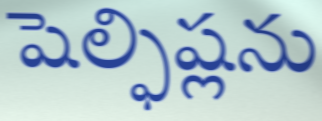
షెల్ఫిష్లను